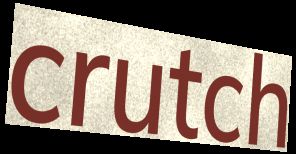
crutch